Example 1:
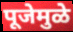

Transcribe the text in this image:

पूजेमुळे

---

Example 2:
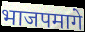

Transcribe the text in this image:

भाजपमागे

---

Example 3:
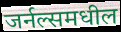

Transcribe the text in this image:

जर्नल्समधील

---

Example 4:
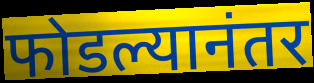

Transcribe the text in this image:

फोडल्यानंतर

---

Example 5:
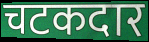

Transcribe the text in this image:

चटकदार